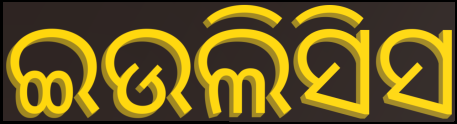
ଇଉଲିସିସ